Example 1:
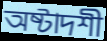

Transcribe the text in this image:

অষ্টাদশী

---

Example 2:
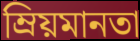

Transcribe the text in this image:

ম্রিয়মানতা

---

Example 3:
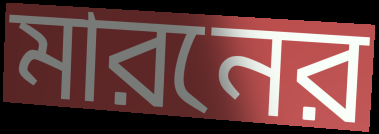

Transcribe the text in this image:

মারনের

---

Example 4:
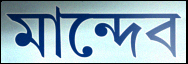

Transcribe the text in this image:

মান্দেব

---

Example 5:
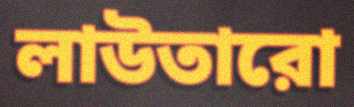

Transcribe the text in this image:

লাউতারো